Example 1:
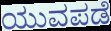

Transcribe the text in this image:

ಯುವಪಡೆ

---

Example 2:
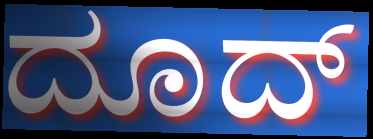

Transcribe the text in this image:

ದೂದ್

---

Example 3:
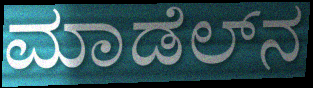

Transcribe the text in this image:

ಮಾಡೆಲ್‌ನ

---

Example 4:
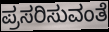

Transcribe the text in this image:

ಪ್ರಸರಿಸುವಂತೆ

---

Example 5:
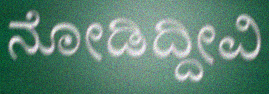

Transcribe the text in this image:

ನೋಡಿದ್ದೀವಿ